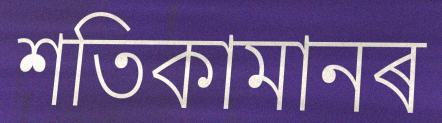
শতিকামানৰ